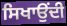
ਸਿਖਾਉਂਦੀ